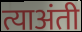
त्याअंती